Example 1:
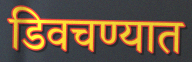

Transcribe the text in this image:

डिवचण्यात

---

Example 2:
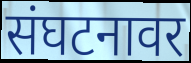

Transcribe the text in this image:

संघटनावर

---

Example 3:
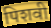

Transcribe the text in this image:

पिशवी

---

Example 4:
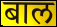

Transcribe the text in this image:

बाल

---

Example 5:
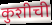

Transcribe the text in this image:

कुशीची